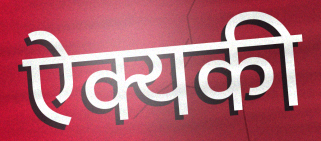
ऐक्यकी